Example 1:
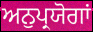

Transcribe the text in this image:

ਅਨੁਪ੍ਰਯੋਗਾਂ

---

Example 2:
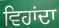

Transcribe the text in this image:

ਵਿਹਾਂਦਾ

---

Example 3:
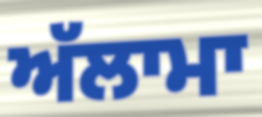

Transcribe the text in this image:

ਅੱਲਾਮਾ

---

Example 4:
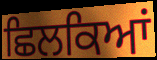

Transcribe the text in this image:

ਛਿਲਕਿਆਂ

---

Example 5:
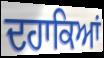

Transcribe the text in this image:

ਦਹਾਕਿਆਂ